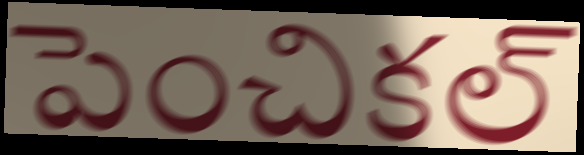
పెంచికల్